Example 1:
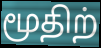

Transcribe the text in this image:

மூதிற்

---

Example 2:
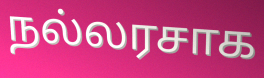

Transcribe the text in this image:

நல்லரசாக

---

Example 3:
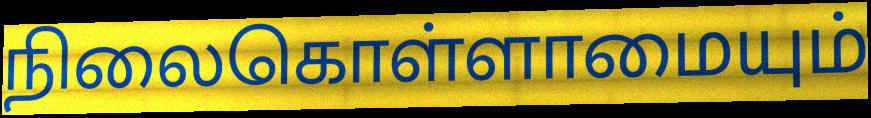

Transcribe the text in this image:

நிலைகொள்ளாமையும்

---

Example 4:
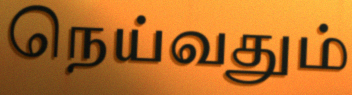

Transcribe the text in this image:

நெய்வதும்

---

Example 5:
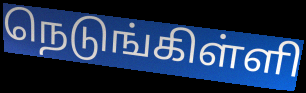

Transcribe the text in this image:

நெடுங்கிள்ளி